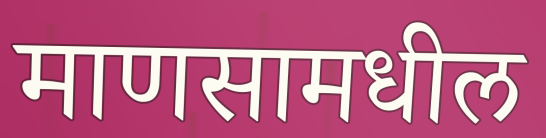
माणसामधील